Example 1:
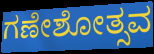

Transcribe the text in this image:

ಗಣೇಶೋತ್ಸವ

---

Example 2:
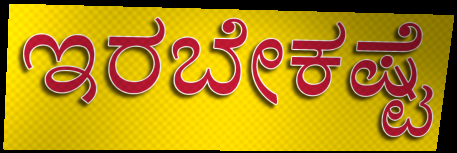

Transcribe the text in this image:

ಇರಬೇಕಷ್ಟೆ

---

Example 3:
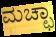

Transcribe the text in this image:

ಮಚ್ಛಾ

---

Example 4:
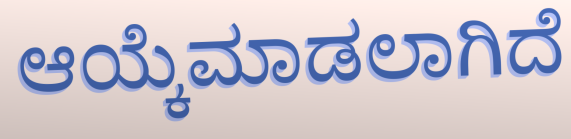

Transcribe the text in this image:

ಆಯ್ಕೆಮಾಡಲಾಗಿದೆ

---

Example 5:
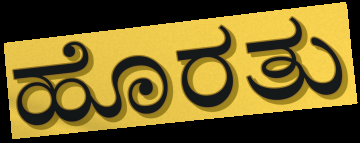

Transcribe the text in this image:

ಹೊರತು